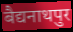
बैद्यनाथपुर